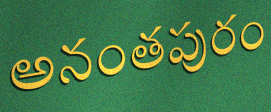
అనంతపురం